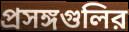
প্রসঙ্গগুলির